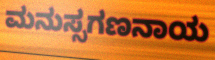
ಮನುಸ್ಸಗಣನಾಯ